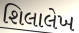
શિલાલેખ